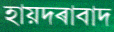
হায়দৰাবাদ